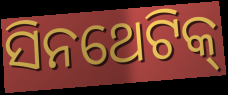
ସିନଥେଟିକ୍